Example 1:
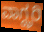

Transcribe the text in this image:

ವಾಗ್ಝರಿ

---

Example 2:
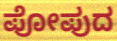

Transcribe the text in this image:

ಪೋಪುದ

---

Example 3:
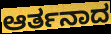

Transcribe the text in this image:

ಆರ್ತನಾದ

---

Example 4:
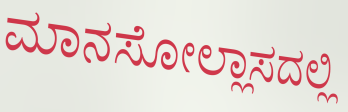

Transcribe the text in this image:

ಮಾನಸೋಲ್ಲಾಸದಲ್ಲಿ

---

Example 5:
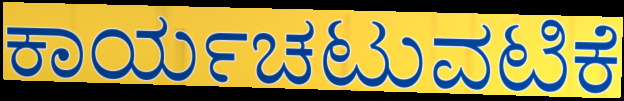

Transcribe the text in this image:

ಕಾರ್ಯಚಟುವಟಿಕೆ